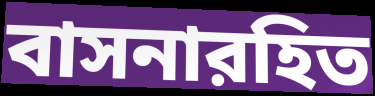
বাসনারহিত